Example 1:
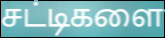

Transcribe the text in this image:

சட்டிகளை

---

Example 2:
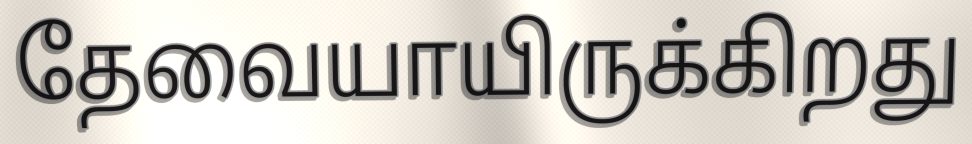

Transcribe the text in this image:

தேவையாயிருக்கிறது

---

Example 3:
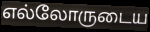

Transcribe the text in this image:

எல்லோருடைய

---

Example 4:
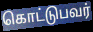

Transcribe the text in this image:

கொட்டுபவர்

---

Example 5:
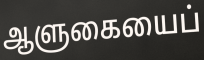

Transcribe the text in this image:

ஆளுகையைப்